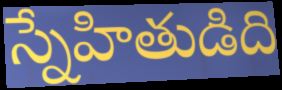
స్నేహితుడిది